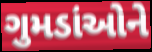
ગુમડાંઓને